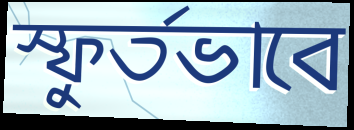
স্ফুর্তভাবে